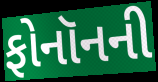
ફોનૉનની